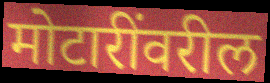
मोटारींवरील